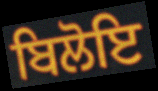
ਬਿਲੋਇ